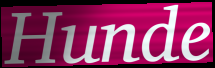
Hunde